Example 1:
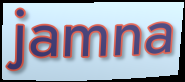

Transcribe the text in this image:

jamna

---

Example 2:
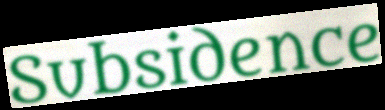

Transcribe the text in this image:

Subsidence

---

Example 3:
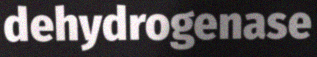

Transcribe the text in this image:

dehydrogenase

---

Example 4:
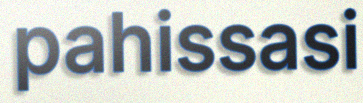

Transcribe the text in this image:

pahissasi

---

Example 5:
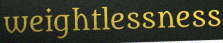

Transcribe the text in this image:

weightlessness